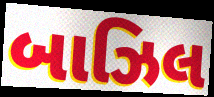
બાઝિલ